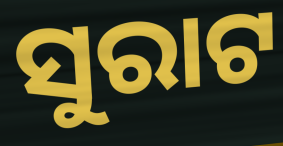
ସୁରାଟ